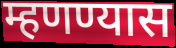
म्हणण्यास